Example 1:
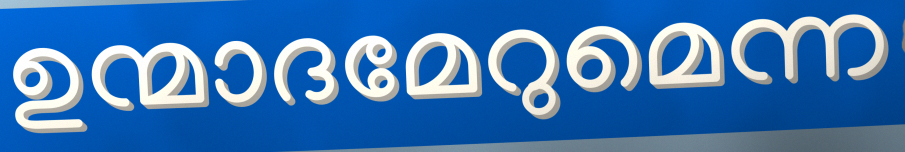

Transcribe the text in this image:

ഉന്മാദമേറുമെന്ന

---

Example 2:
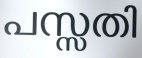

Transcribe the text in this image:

പസ്സതി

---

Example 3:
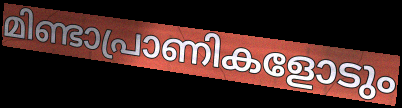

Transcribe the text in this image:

മിണ്ടാപ്രാണികളോടും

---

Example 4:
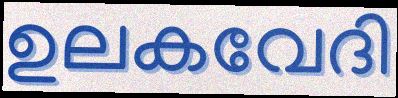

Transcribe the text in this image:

ഉലകവേദി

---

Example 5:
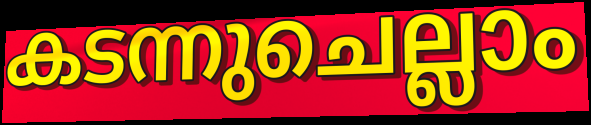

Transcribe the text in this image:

കടന്നുചെല്ലാം